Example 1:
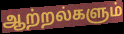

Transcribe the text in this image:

ஆற்றல்களும்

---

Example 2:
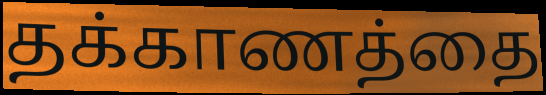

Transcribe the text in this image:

தக்காணத்தை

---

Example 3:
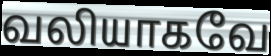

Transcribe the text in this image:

வலியாகவே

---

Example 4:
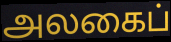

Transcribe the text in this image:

அலகைப்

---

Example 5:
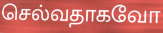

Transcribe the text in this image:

செல்வதாகவோ